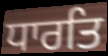
ਧਾਰਤਿ